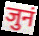
जुनं